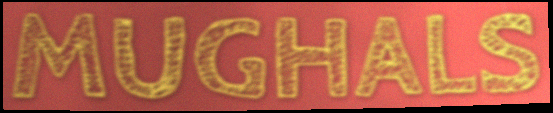
MUGHALS